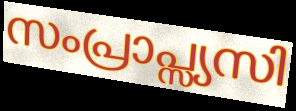
സംപ്രാപ്സ്യസി